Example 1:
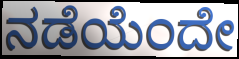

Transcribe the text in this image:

ನಡೆಯೆಂದೇ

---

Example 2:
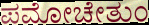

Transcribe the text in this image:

ಪಮೋಚೇತುಂ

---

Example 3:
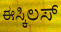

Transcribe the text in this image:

ಈಸ್ಕಿಲಸ್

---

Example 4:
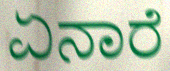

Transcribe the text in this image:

ಏನಾರೆ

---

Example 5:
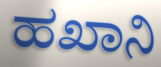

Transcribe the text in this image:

ಹಖಾನಿ